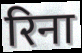
रिना